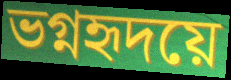
ভগ্নহৃদয়ে